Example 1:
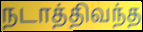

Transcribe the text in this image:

நடாத்திவந்த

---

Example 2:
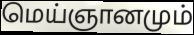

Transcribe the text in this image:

மெய்ஞானமும்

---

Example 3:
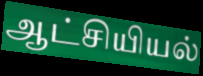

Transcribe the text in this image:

ஆட்சியியல்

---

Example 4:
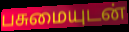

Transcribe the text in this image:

பசுமையுடன்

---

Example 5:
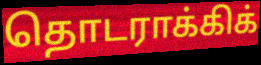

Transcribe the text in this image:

தொடராக்கிக்